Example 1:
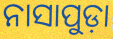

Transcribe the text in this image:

ନାସାପୁଡ଼ା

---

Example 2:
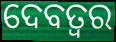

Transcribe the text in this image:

ଦେବତ୍ଵର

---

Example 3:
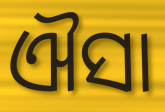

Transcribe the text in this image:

ଐସା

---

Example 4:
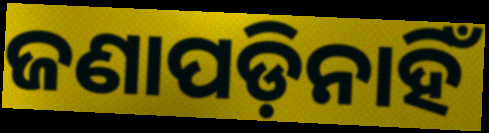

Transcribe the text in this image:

ଜଣାପଡ଼ିନାହିଁ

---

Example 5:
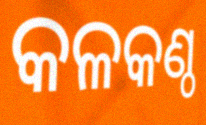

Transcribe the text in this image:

କଳକଣ୍ଠ